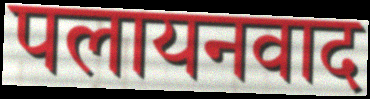
पलायनवाद